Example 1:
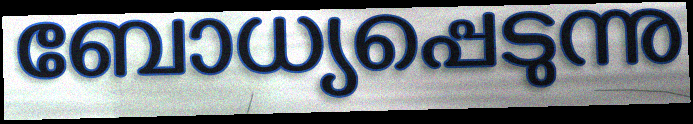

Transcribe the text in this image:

ബോധ്യപ്പെടുന്നു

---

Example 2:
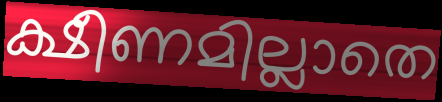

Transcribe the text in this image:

ക്ഷീണമില്ലാതെ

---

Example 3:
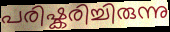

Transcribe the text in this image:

പരിഷ്കരിച്ചിരുന്നു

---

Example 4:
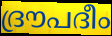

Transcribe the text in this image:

ദ്രൗപദീം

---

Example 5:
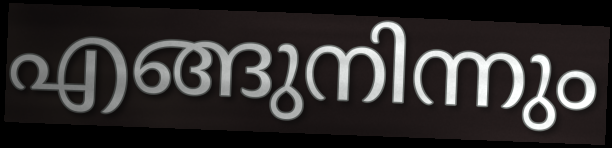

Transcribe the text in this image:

എങ്ങുനിന്നും